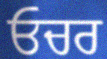
ਓਚਰ